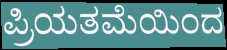
ಪ್ರಿಯತಮೆಯಿಂದ